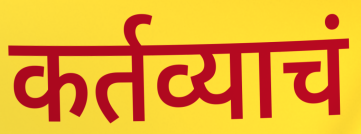
कर्तव्याचं